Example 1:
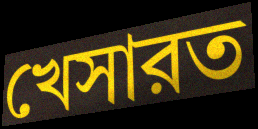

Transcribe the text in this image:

খেসারত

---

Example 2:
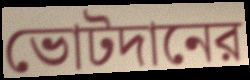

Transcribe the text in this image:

ভোটদানের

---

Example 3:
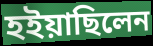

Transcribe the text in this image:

হইয়াছিলেন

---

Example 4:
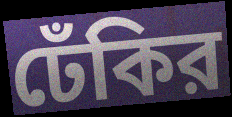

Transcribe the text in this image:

ঢেঁকির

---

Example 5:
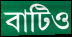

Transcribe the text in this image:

বাটিও